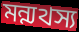
মন্মথস্য